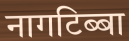
नागटिब्बा